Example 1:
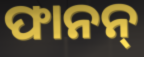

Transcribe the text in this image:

ଫାନନ୍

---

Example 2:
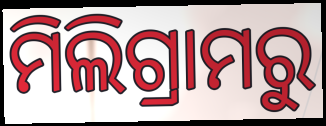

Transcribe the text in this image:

ମିଲିଗ୍ରାମରୁ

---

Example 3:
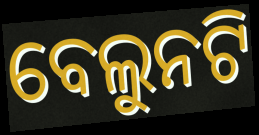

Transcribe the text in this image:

ବେଲୁନଟି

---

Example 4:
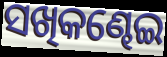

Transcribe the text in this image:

ସଖିକଣ୍ଢେଇ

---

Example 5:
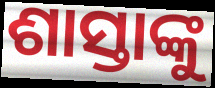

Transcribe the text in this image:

ଶାସ୍ତାଙ୍କୁ